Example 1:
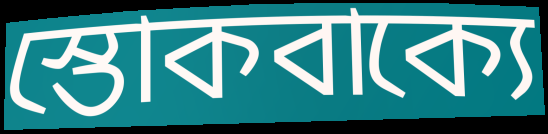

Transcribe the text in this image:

স্তোকবাক্যে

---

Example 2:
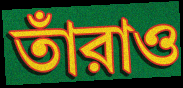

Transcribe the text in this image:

তাঁরাও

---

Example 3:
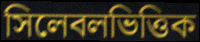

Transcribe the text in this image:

সিলেবলভিত্তিক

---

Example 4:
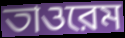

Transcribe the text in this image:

তাওরেম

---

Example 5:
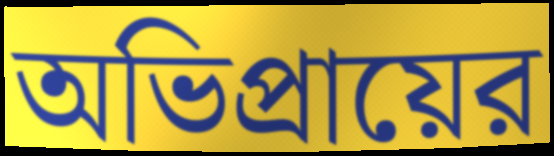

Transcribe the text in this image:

অভিপ্রায়ের